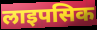
लाइपसिक